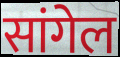
सांगेल